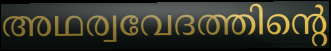
അഥര്വവേദത്തിന്റെ